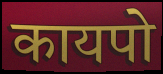
कायपो